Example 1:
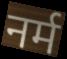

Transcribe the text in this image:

नर्म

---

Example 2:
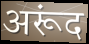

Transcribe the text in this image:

अरूंद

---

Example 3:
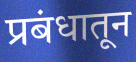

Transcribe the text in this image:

प्रबंधातून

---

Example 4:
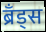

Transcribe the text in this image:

ब्रँड्स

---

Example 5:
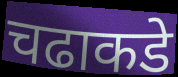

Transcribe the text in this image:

चढाकडे